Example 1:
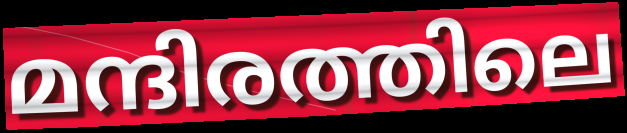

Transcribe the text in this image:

മന്ദിരത്തിലെ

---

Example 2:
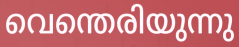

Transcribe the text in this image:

വെന്തെരിയുന്നു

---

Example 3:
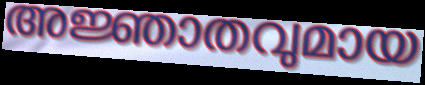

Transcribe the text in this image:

അജ്ഞാതവുമായ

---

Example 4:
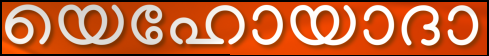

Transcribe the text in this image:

യെഹോയാദാ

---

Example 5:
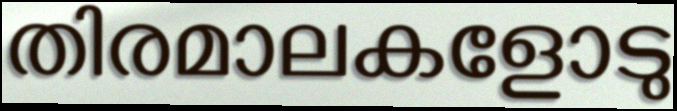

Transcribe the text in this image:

തിരമാലകളോടു